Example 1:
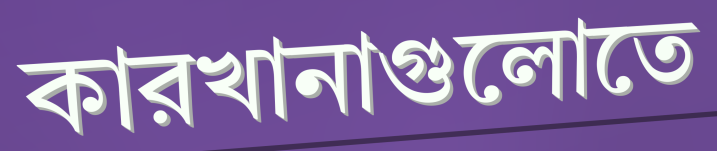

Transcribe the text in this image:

কারখানাগুলোতে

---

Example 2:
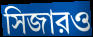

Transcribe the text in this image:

সিজারও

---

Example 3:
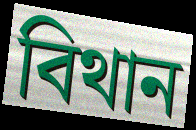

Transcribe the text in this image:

বিথান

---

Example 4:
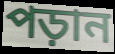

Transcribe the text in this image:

পড়ান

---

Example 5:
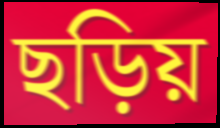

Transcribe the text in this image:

ছড়িয়